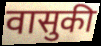
वासुकी